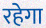
रहेगा